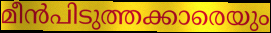
മീൻപിടുത്തക്കാരെയും